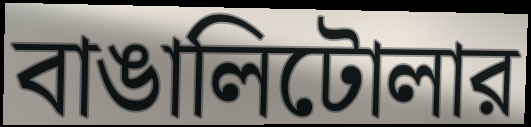
বাঙালিটোলার